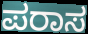
ಪರಾಸ